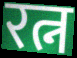
रत्न